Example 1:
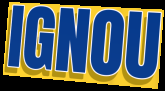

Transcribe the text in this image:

IGNOU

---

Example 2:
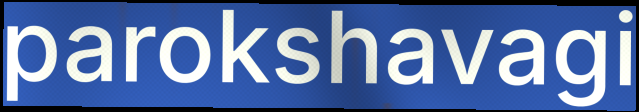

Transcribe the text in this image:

parokshavagi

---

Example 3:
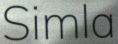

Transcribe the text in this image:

Simla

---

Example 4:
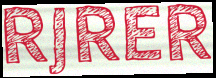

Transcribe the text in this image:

RJRER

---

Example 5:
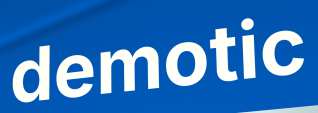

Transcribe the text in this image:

demotic